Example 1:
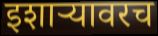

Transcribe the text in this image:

इशाऱ्यावरच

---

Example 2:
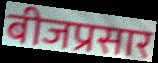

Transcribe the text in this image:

बीजप्रसार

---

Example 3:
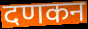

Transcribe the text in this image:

दणकन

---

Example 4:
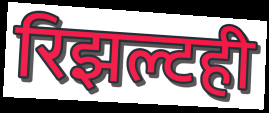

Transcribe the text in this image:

रिझल्टही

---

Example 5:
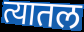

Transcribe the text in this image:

त्यातल